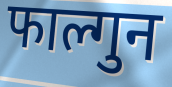
फाल्गुन